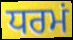
ਧਰਮਂ